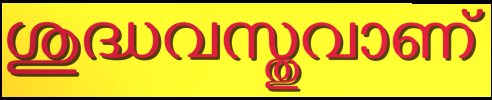
ശുദ്ധവസ്തുവാണ്